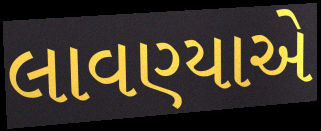
લાવણ્યાએ